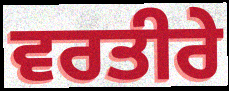
ਵਰਤੀਰੇ